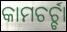
କାମଚର୍ଚ୍ଚା